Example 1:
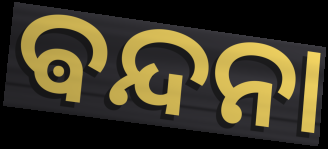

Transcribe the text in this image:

ଵନ୍ଦନା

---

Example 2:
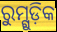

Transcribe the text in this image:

ରୁମ୍ଗୁଡ଼ିକ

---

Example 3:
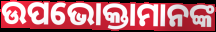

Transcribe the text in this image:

ଉପଭୋକ୍ତାମାନଙ୍କ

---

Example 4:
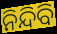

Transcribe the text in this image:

ନିନ୍ଦିବି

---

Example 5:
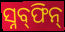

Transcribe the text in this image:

ସ୍ନବ୍‍ଫିନ୍